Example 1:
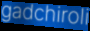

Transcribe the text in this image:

gadchiroli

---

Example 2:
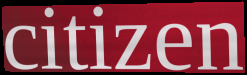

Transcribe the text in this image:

citizen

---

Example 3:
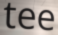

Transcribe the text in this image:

tee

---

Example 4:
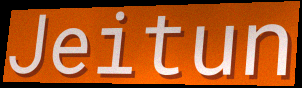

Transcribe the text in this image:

Jeitun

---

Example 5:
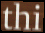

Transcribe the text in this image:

thi